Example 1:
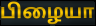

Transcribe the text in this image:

பிழையா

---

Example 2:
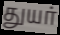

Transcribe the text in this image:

துயர்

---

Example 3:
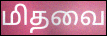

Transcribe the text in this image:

மிதவை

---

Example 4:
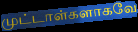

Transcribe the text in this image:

முட்டாள்களாகவே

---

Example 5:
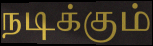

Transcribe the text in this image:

நடிக்கும்